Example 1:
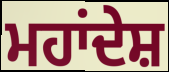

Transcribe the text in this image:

ਮਹਾਂਦੇਸ਼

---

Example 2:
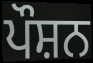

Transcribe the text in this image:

ਪੌਸ਼ਨ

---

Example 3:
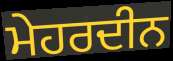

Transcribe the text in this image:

ਮੇਹਰਦੀਨ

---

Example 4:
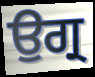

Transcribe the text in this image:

ਉਗ੍ਰ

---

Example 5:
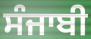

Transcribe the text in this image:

ਸੰਜਾਬੀ